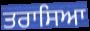
ਤਰਾਸਿਆ